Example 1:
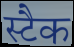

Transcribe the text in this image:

स्टैक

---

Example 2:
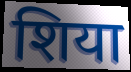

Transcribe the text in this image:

शिया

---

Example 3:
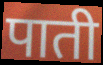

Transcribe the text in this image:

पाती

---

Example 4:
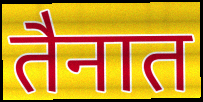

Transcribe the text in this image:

तैनात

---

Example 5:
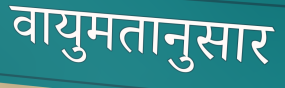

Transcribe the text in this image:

वायुमतानुसार